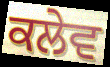
ਕਲੇਵ